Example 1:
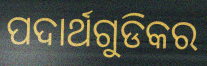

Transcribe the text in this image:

ପଦାର୍ଥଗୁଡିକର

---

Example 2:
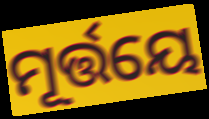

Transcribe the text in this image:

ମୂର୍ତ୍ତୟେ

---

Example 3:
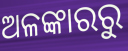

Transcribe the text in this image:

ଅଳଙ୍କାରରୁ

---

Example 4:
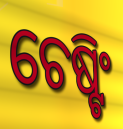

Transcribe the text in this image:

ଚେଷ୍ଟିଂ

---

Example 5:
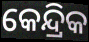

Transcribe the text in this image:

କେନ୍ଦ୍ରିକ